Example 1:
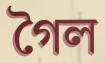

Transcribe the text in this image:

গৈল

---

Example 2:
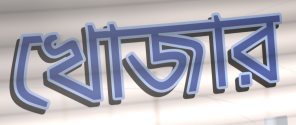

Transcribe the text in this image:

খোজার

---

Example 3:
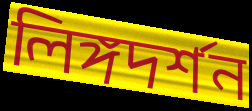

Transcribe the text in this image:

লিঙ্গদর্শন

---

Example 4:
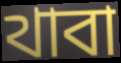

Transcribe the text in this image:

থাবা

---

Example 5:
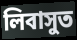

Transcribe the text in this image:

লিবাসুত